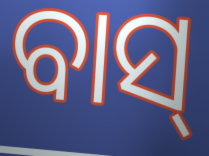
ବାସ୍